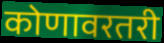
कोणावरतरी